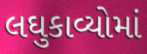
લઘુકાવ્યોમાં